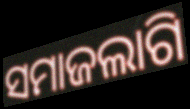
ସମାଜଲାଗି